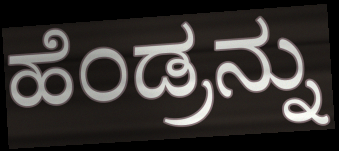
ಹೆಂಡ್ರನ್ನು